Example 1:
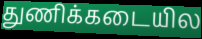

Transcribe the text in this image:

துணிக்கடையில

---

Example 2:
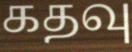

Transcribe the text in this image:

கதவு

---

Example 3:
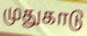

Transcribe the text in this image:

முதுகாடு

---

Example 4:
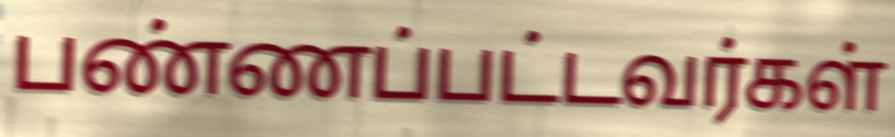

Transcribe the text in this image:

பண்ணப்பட்டவர்கள்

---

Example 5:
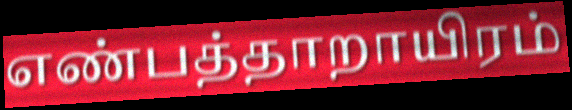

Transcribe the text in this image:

எண்பத்தாறாயிரம்